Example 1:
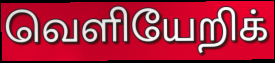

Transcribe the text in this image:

வெளியேறிக்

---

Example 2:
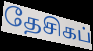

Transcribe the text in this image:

தேசிகப்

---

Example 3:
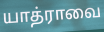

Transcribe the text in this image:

யாத்ராவை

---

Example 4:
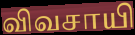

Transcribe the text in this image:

விவசாயி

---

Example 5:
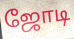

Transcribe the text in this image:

ஜோடி